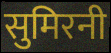
सुमिरनी